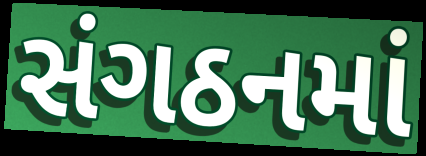
સંગઠનમાં